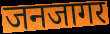
जनजागर